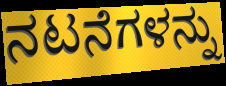
ನಟನೆಗಳನ್ನು